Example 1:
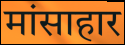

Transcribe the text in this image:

मांसाहार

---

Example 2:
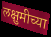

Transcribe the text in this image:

लक्षुमीच्या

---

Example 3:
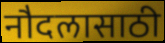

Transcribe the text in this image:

नौदलासाठी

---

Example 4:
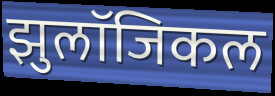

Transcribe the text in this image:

झुलॉजिकल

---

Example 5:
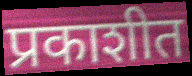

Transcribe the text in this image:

प्रकाशीत